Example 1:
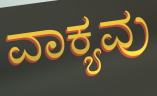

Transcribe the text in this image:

ವಾಕ್ಯವು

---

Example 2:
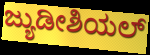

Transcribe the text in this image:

ಜ್ಯುಡೀಶಿಯಲ್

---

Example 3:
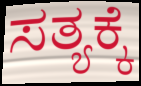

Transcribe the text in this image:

ಸತ್ಯಕ್ಕೆ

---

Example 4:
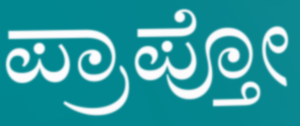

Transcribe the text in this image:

ಪ್ರಾಪ್ತೋ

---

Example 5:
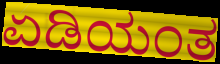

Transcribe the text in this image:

ಏಡಿಯಂತ